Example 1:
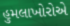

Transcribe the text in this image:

હુમલાખોરોએ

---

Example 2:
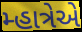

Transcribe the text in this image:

મ્હાત્રેએ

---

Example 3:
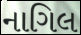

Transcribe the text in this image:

નાગિલ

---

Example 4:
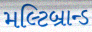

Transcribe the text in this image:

મલ્ટિબ્રાન્ડ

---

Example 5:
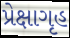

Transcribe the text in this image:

પ્રેક્ષાગૃહ